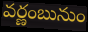
వర్ణంబునుం